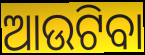
ଆଉଟିବା